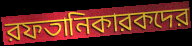
রফতানিকারকদের